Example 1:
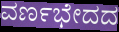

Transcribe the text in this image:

ವರ್ಣಭೇದದ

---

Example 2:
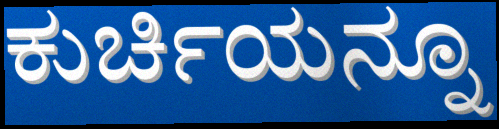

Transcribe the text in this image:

ಕುರ್ಚಿಯನ್ನೂ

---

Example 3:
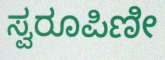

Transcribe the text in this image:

ಸ್ವರೂಪಿಣೀ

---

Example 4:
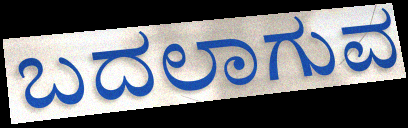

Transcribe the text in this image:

ಬದಲಾಗುವ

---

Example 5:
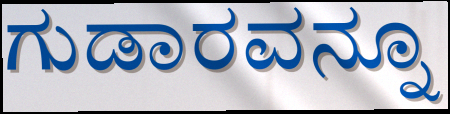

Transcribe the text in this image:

ಗುಡಾರವನ್ನೂ